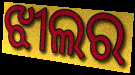
ଝୀଲର